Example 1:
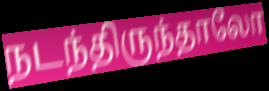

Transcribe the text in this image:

நடந்திருந்தாலோ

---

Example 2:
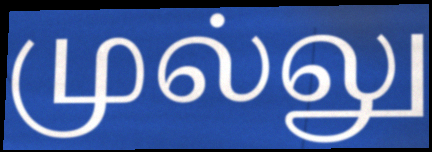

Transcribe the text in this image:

முல்லு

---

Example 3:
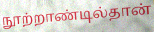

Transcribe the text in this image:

நூற்றாண்டில்தான்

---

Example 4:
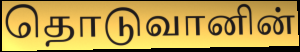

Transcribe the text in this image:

தொடுவானின்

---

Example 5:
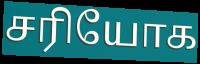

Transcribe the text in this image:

சரியோக